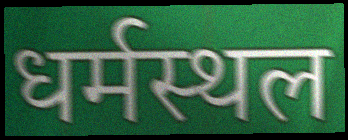
धर्मस्थल